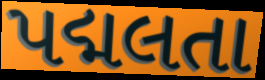
પદ્મલતા